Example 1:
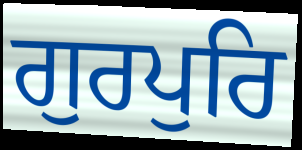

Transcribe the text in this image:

ਗੁਰਪੁਰਿ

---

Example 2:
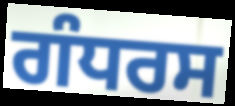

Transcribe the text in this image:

ਗੰਧਰਸ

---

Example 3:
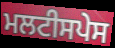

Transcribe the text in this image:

ਮਲਟੀਸਪੇਸ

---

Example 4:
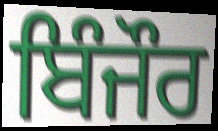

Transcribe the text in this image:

ਬਿੰਜੌਰ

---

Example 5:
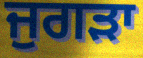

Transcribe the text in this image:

ਜੁਗੜਾ